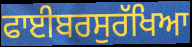
ਫਾਈਬਰਸੁਰੱਖਿਆ